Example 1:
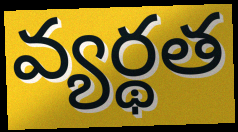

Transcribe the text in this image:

వ్యర్థత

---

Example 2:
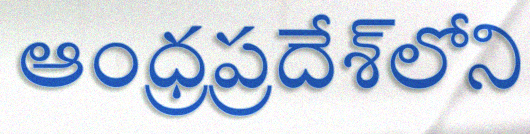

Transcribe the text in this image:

ఆంధ్రప్రదేశ్‌లోని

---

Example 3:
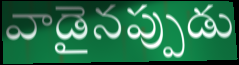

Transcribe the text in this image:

వాడైనప్పుడు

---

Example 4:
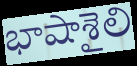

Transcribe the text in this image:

భాషాశైలి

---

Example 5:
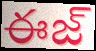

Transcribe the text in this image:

ఈజ్